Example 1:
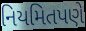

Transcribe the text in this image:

નિયમિતપણે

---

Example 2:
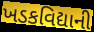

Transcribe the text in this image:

ખડકવિદ્યાની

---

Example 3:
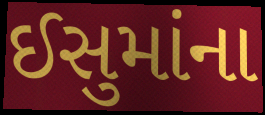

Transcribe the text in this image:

ઈસુમાંના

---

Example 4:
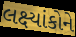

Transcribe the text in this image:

લક્ષ્યાંકોને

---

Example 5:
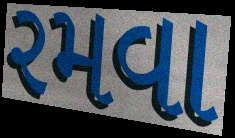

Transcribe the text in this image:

રમવા